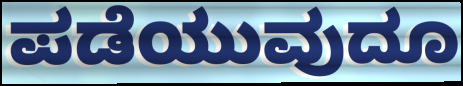
ಪಡೆಯುವುದೂ